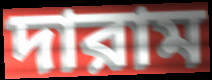
দারাম